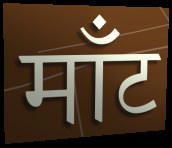
माँट